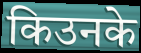
किउनके